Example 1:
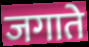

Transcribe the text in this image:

जगाते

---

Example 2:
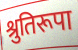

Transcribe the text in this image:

श्रुतिरूपा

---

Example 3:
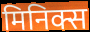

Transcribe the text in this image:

मिनिक्स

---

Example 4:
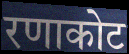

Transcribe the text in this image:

रणाकोट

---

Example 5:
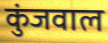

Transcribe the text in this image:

कुंजवाल